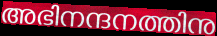
അഭിനന്ദനത്തിനു